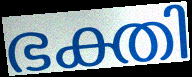
ഭക്തി